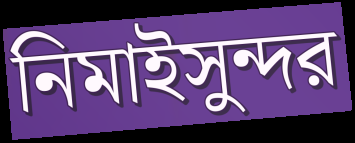
নিমাইসুন্দর